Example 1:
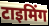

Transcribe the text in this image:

टाइमिंग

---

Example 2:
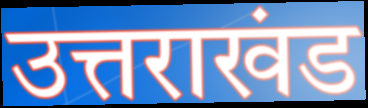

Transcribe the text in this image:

उत्तराखंड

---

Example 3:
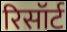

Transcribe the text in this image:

रिसॉर्ट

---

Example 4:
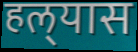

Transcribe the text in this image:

हल्यास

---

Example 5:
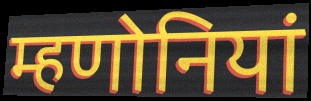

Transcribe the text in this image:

म्हणोनियां